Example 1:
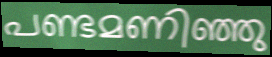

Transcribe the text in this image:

പണ്ടമണിഞ്ഞു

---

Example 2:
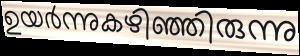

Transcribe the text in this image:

ഉയർന്നുകഴിഞ്ഞിരുന്നു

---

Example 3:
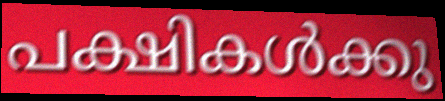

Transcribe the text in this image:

പക്ഷികൾക്കു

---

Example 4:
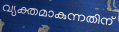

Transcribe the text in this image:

വ്യക്തമാകുന്നതിന്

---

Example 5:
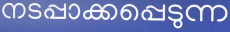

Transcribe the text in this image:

നടപ്പാക്കപ്പെടുന്ന